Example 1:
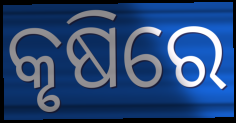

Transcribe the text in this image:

କୃଷିରେ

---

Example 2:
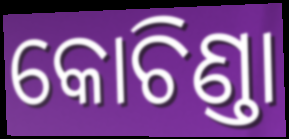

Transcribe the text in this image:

କୋଚିଣ୍ଡା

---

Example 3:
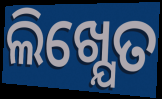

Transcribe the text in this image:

ଲିଖ୍ଯେତ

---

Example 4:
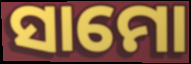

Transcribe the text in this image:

ସାମୋ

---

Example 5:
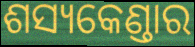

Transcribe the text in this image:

ଶସ୍ୟକେଣ୍ଡାର